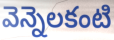
వెన్నెలకంటి